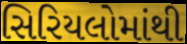
સિરિયલોમાંથી